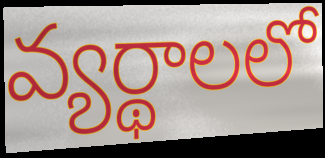
వ్యర్థాలలో